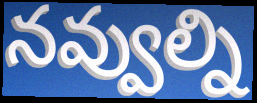
నవ్వుల్ని